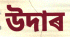
উদাৰ